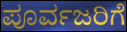
ಪೂರ್ವಜರಿಗೆ